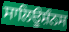
ਸਾਲਿਊਸ਼ੰਨਸ